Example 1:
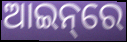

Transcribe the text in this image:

ଆଇନ୍‌ରେ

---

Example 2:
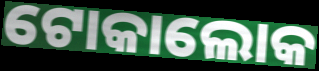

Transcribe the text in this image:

ଟୋକାଲୋକ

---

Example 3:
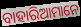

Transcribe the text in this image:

ବାହାରିଆମାନେ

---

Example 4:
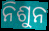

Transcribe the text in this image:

ନିଶୁନ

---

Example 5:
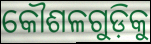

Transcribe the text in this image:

କୌଶଳଗୁଡ଼ିକୁ